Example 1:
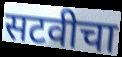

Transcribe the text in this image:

सटवीचा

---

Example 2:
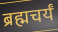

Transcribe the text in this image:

ब्रह्मचर्यं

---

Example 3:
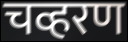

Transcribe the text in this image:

चव्हरण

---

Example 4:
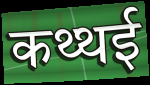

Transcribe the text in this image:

कथ्थई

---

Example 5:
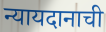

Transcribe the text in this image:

न्यायदानाची